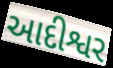
આદીશ્વર